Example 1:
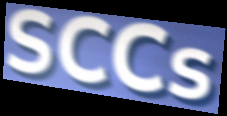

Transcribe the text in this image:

SCCs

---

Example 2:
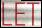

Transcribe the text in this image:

LET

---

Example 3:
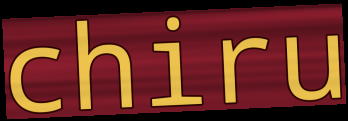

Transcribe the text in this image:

chiru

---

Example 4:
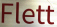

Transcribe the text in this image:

Flett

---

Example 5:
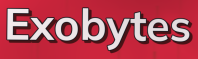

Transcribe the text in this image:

Exobytes